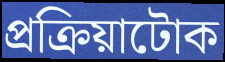
প্ৰক্ৰিয়াটোক